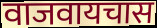
वाजवायचास